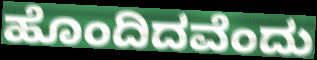
ಹೊಂದಿದವೆಂದು